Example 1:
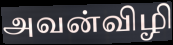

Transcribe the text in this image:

அவன்விழி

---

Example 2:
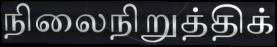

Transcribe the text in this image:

நிலைநிறுத்திக்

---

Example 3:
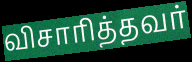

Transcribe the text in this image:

விசாரித்தவர்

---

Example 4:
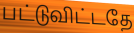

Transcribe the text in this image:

பட்டுவிட்டதே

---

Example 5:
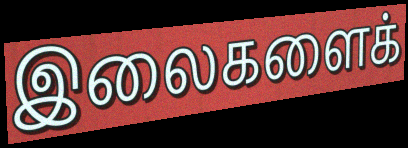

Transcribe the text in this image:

இலைகளைக்